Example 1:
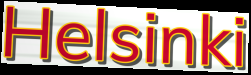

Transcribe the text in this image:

Helsinki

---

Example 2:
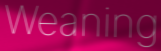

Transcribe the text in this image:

Weaning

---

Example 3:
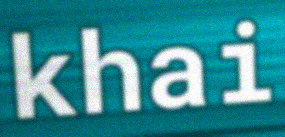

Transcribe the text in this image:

khai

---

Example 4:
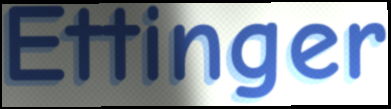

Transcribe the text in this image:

Ettinger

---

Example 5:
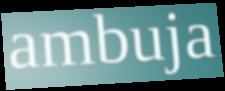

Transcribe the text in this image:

ambuja